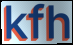
kfh